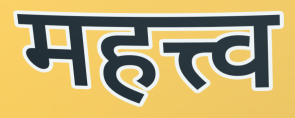
महत्त्व